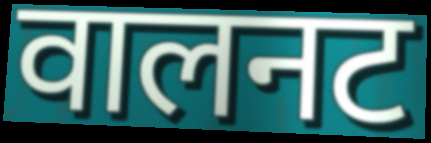
वालनट